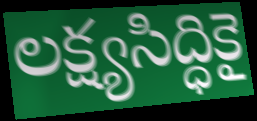
లక్ష్యసిద్ధికై